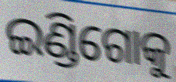
ଇଣ୍ଡିଗୋକୁ